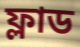
ফ্লাড